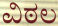
ವಿಠಲ